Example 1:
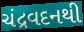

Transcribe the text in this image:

ચંદ્રવદનથી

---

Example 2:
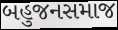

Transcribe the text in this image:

બહુજનસમાજ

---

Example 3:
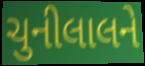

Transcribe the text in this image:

ચુનીલાલને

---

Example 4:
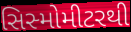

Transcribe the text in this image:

સિસ્મોમીટરથી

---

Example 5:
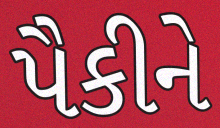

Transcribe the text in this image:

પૈકીને